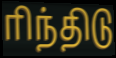
ரிந்திடு